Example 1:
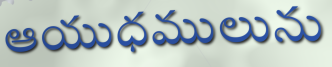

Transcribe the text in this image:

ఆయుధములును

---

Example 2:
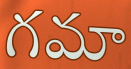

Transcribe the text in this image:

గమా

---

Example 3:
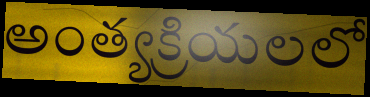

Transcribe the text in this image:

అంత్యక్రియలలో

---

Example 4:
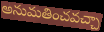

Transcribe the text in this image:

అనుమతించవచ్చా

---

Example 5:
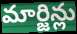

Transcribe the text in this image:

మార్జిన్లు